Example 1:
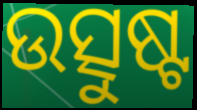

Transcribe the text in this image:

ଉତ୍ସୁଷ୍ଟ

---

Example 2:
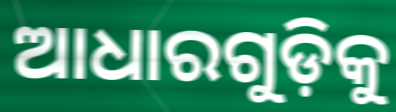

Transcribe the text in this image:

ଆଧାରଗୁଡ଼ିକୁ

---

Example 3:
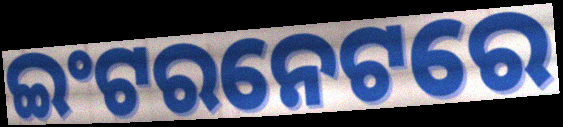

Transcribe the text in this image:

ଇଂଟରନେଟରେ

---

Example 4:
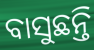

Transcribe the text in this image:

ବାସୁଛନ୍ତି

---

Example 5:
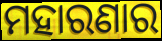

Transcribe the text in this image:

ମହାରଣାର